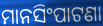
ମାନସିଂପାଟଣା